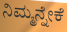
ನಿಮ್ಮನ್ನೇಕೆ